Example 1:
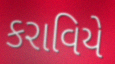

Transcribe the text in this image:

કરાવિયે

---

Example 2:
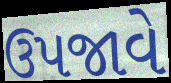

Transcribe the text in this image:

ઉપજાવે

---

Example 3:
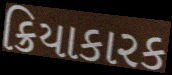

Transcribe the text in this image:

ક્રિયાકારક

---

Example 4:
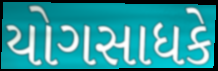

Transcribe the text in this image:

યોગસાધકે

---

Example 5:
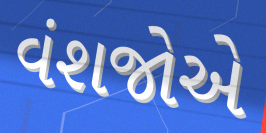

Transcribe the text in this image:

વંશજોએ